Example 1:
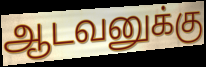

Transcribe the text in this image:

ஆடவனுக்கு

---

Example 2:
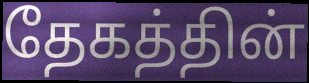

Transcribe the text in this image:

தேகத்தின்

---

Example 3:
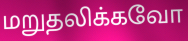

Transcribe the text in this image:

மறுதலிக்கவோ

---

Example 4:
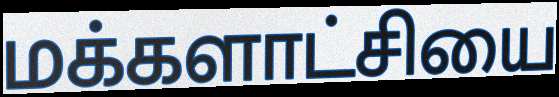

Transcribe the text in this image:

மக்களாட்சியை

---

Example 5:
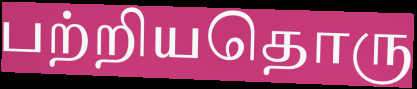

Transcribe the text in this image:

பற்றியதொரு